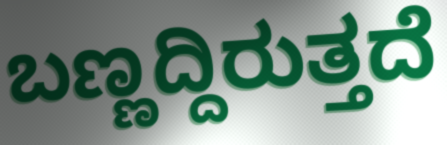
ಬಣ್ಣದ್ದಿರುತ್ತದೆ